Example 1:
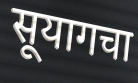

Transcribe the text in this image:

सूयागचा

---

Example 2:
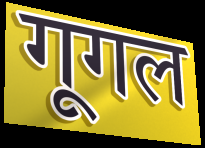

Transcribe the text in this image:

गूगल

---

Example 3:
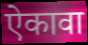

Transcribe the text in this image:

ऐकावा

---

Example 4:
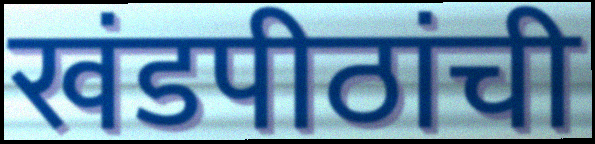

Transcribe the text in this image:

खंडपीठांची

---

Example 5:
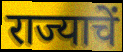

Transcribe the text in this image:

राज्याचें